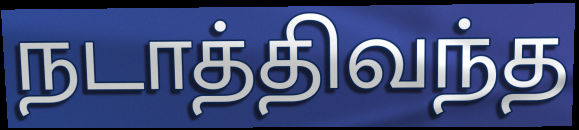
நடாத்திவந்த